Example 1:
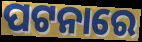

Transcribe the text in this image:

ପଟନାରେ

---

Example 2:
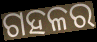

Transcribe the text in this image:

ଗହଳର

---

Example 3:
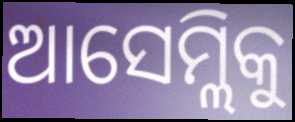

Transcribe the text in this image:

ଆସେମ୍ଲିକୁ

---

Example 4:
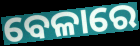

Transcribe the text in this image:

ବେଳାରେ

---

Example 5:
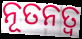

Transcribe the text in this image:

ନୂତନତ୍ୱ